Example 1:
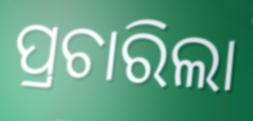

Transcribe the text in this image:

ପ୍ରଚାରିଲା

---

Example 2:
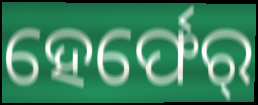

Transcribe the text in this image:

ହେର୍ଫେର୍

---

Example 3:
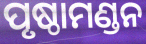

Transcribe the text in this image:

ପୃଷ୍ଠାମଣ୍ଡନ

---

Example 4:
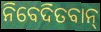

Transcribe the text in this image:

ନିବେଦିତବାନ୍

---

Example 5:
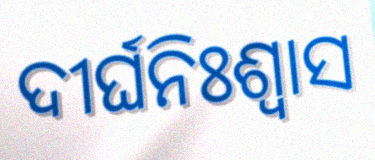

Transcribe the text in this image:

ଦୀର୍ଘନିଃଶ୍ବାସ